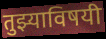
तुझ्याविषयी